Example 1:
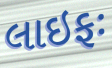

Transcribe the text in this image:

લાઇફઃ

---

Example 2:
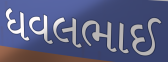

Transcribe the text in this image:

ધવલભાઈ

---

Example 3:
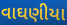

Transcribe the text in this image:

વાઘણીયા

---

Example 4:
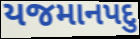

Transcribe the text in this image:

યજમાનપદુ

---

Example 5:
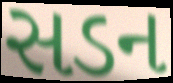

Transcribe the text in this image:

સડન